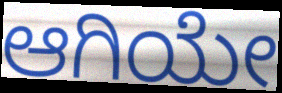
ಆಗಿಯೇ